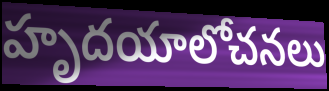
హృదయాలోచనలు